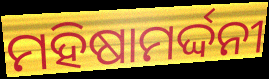
ମହିଷାମର୍ଦ୍ଦନୀ